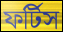
ফর্টিস